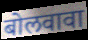
बोलवावा